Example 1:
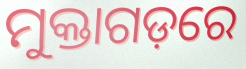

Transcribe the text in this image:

ମୁକ୍ତାଗଡ଼ରେ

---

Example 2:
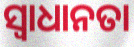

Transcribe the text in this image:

ସ୍ୱାଧାନତା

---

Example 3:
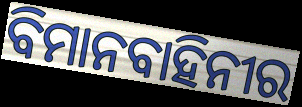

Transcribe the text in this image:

ବିମାନବାହିନୀର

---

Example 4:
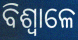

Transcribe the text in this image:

ବିଶ୍ଵାଳେ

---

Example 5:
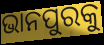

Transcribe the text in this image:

ଭାନପୁରକୁ